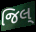
જિલ્